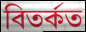
বিতৰ্কত